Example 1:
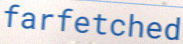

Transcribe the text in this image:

farfetched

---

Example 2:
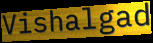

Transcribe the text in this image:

Vishalgad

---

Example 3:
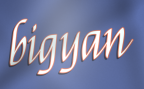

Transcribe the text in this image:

bigyan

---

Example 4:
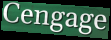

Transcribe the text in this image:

Cengage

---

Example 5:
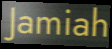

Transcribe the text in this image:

Jamiah